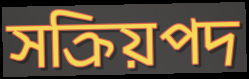
সক্রিয়পদ